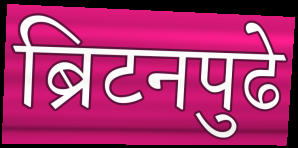
ब्रिटनपुढे